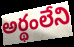
అర్థంలేని